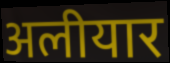
अलीयार